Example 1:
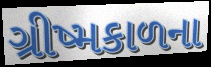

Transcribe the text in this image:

ગ્રીષ્મકાળના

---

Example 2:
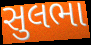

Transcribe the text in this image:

સુલભા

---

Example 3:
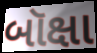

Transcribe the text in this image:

બૉક્ષા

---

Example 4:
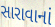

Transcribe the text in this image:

સારાવાનાં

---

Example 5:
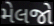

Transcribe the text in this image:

મેલજો